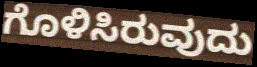
ಗೊಳಿಸಿರುವುದು